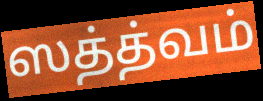
ஸத்த்வம்